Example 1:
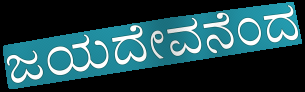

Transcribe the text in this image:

ಜಯದೇವನೆಂದ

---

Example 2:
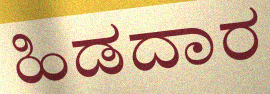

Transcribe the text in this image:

ಹಿಡದಾರ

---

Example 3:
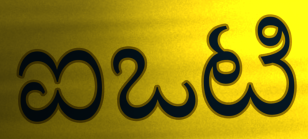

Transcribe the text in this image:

ಐಒಟಿ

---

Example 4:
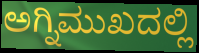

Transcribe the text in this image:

ಅಗ್ನಿಮುಖದಲ್ಲಿ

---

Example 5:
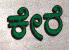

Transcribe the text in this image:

ಕೇರೆ